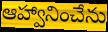
ఆహ్వానించేను